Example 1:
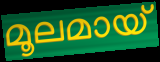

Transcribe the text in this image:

മൂലമായ്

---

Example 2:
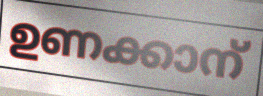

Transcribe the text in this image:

ഉണക്കാന്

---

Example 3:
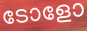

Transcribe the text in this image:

ടോളോ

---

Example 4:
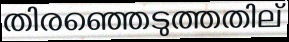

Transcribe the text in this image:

തിരഞ്ഞെടുത്തതില്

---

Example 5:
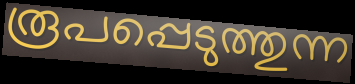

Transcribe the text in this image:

രൂപപ്പെടുത്തുന്ന